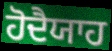
ਹੋਦੈਯਾਹ